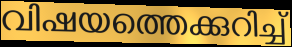
വിഷയത്തെക്കുറിച്ച്